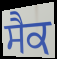
ਸੈਕ